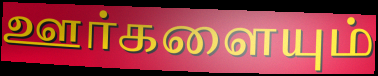
ஊர்களையும்